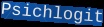
Psichlogit